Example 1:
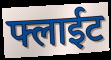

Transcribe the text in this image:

फ्लाईट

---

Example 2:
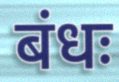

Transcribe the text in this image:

बंधः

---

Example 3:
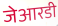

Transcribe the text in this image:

जेआरडी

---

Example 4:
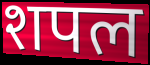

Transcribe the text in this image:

शपल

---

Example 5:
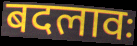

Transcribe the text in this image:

बदलावः